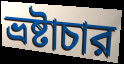
ভ্রষ্টাচার